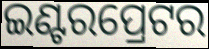
ଇଣ୍ଟରପ୍ରେଟର